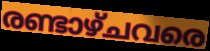
രണ്ടാഴ്ചവരെ